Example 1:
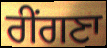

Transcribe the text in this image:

ਰੀਂਗਣਾ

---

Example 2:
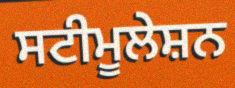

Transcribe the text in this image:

ਸਟੀਮੂਲੇਸ਼ਨ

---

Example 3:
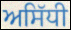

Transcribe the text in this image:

ਅਸਿੱਧੀ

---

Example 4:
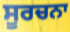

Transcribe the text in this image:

ਸੂਰਚਨਾ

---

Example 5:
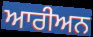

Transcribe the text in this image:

ਆਰੀਅਨ